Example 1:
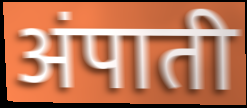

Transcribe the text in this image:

अंपाती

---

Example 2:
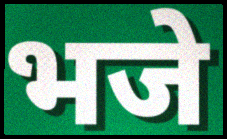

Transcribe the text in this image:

भजे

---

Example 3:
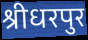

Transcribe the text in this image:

श्रीधरपुर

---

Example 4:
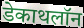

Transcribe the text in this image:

डेकाथलॉन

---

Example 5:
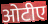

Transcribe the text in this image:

ओटीए